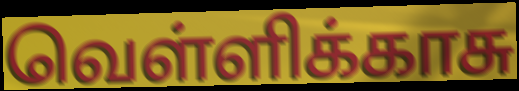
வெள்ளிக்காசு